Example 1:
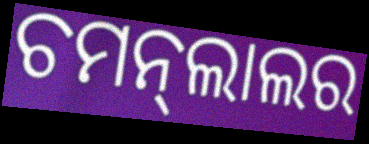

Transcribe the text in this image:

ଚମନ୍‍ଲାଲର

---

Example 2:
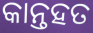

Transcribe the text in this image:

କାନ୍ତହତ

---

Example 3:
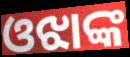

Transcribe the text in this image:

ଓଝାଙ୍କ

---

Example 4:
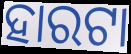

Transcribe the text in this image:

ହାରଟା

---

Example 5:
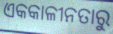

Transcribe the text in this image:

ଏକକାଳୀନତାରୁ